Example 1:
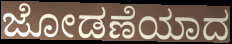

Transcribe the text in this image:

ಜೋಡಣೆಯಾದ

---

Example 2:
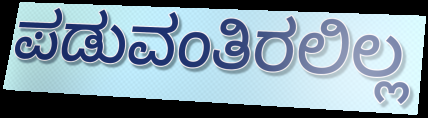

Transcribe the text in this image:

ಪಡುವಂತಿರಲಿಲ್ಲ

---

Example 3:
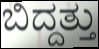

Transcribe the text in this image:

ಬಿದ್ದತ್ತು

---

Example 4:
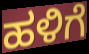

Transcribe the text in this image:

ಹಳಿಗೆ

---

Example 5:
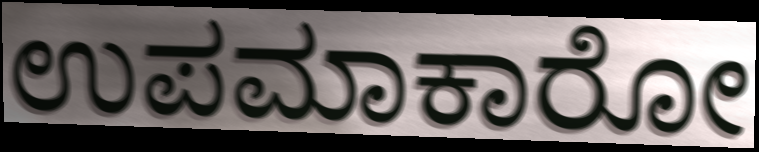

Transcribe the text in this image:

ಉಪಮಾಕಾರೋ